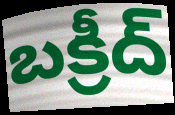
బక్రీద్